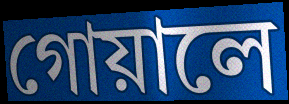
গোয়ালে